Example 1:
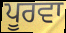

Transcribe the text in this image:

ਪੂਰਵਾ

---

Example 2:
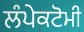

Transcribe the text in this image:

ਲੰਪੇਕਟੋਮੀ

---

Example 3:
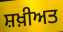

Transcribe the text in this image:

ਸ਼ਖ਼ੀਅਤ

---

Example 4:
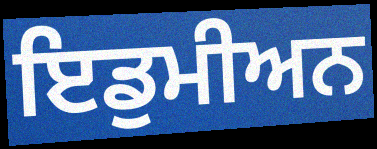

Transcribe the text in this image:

ਇਡੁਮੀਅਨ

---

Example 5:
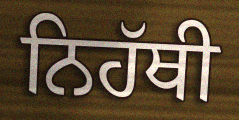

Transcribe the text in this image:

ਨਿਹੱਥੀ